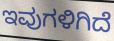
ಇವುಗಳಿಗಿದೆ